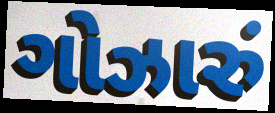
ગોઝારું